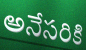
అనేసరికి